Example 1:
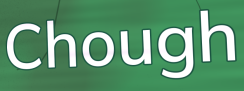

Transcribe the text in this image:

Chough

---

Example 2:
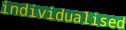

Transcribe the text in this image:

individualised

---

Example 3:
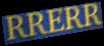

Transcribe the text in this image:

RRERR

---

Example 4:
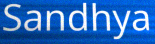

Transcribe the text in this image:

Sandhya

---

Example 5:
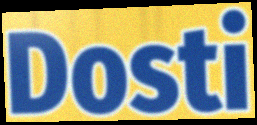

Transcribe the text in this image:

Dosti